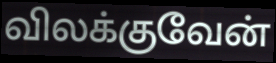
விலக்குவேன்